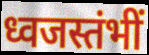
ध्वजस्तंभीं